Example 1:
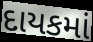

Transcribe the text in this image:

દાયકમાં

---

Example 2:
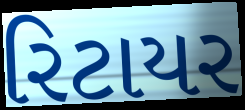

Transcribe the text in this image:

રિટાયર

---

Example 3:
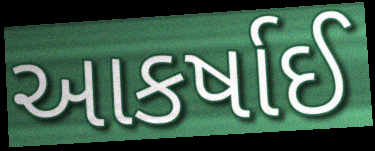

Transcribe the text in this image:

આકર્ષાઈ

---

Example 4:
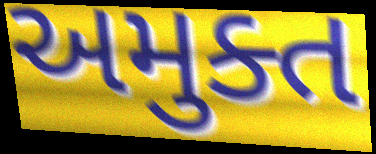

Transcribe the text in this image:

અમુક્ત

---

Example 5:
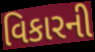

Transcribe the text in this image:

વિકારની